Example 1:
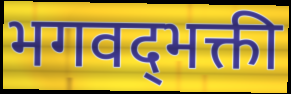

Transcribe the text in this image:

भगवद्‌भक्ती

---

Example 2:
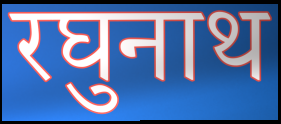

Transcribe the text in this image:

रघुनाथ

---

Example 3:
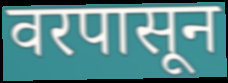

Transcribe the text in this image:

वरपासून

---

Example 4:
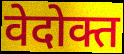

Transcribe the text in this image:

वेदोक्त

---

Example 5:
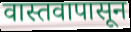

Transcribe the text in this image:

वास्तवापासून